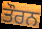
ਤੌਰਨ